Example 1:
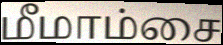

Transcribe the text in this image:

மீமாம்சை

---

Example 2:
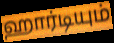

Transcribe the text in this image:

ஹார்டியும்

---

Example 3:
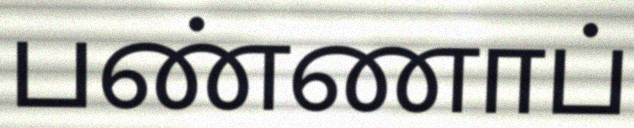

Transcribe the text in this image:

பண்ணாப்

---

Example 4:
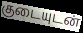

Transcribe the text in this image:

குடையுடன்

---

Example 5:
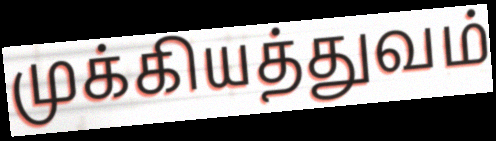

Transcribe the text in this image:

முக்கியத்துவம்